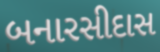
બનારસીદાસ